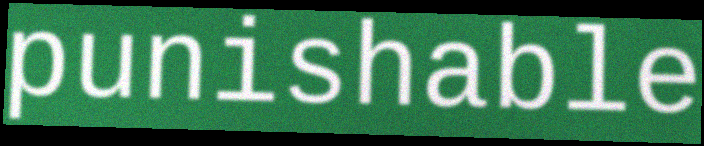
punishable